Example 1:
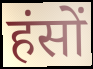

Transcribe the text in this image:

हंसों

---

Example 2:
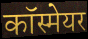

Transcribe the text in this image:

कॉस्मेयर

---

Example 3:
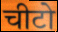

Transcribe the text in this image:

चीटो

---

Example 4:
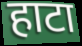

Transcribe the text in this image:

हाटा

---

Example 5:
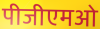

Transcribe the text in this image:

पीजीएमओ